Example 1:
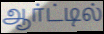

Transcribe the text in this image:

ஆர்ட்டில்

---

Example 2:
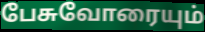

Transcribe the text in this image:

பேசுவோரையும்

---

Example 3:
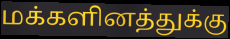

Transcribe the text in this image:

மக்களினத்துக்கு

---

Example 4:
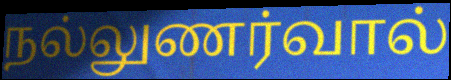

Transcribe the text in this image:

நல்லுணர்வால்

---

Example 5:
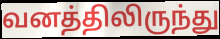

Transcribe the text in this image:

வனத்திலிருந்து